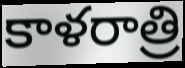
కాళరాత్రి